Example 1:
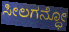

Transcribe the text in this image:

ಸೀಲಗನ್ಧೋ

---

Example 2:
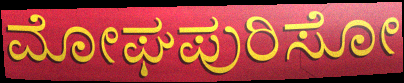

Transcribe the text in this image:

ಮೋಘಪುರಿಸೋ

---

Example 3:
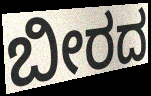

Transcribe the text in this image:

ಬೀರದ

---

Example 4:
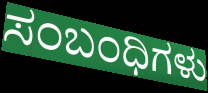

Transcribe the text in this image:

ಸಂಬಂಧಿಗಳು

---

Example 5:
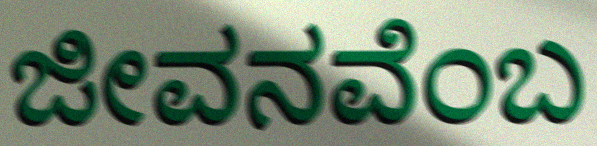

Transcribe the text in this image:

ಜೀವನವೆಂಬ